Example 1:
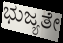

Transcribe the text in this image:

ಭುಜ್ಯತೇ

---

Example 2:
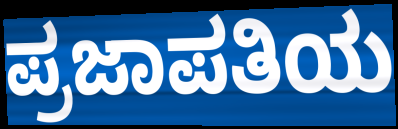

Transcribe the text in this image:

ಪ್ರಜಾಪತಿಯ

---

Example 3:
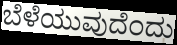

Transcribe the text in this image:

ಬೆಳೆಯುವುದೆಂದು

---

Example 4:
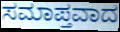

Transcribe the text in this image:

ಸಮಾಪ್ತವಾದ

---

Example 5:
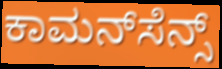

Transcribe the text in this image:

ಕಾಮನ್‌ಸೆನ್ಸ್